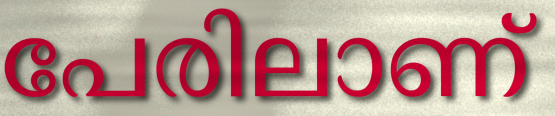
പേരിലാണ്